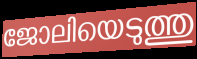
ജോലിയെടുത്തു